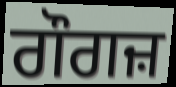
ਗੌਗਜ਼